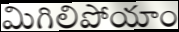
మిగిలిపోయాం